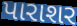
પારાશર